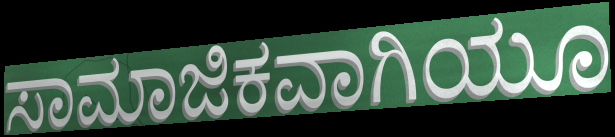
ಸಾಮಾಜಿಕವಾಗಿಯೂ